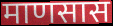
माणसास